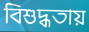
বিশুদ্ধতায়